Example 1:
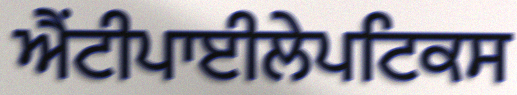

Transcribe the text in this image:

ਐਂਟੀਪਾਈਲੇਪਟਿਕਸ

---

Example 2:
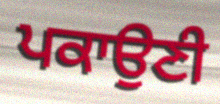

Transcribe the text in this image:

ਪਕਾਉਣੀ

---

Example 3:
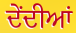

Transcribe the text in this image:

ਦੇਂਦੀਆਂ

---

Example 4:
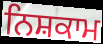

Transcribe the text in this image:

ਨਿਸ਼ਕਾਮ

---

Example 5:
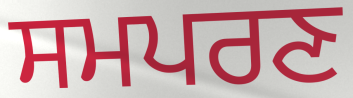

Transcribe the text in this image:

ਸਮਪਰਣ